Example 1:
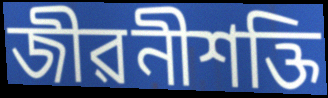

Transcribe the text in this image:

জীৱনীশক্তি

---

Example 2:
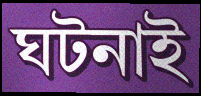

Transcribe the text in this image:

ঘটনাই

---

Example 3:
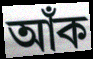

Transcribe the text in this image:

আঁক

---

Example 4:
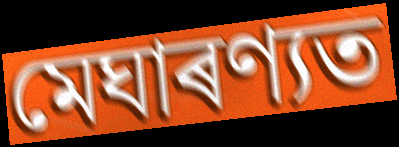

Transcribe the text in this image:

মেঘাৰণ্যত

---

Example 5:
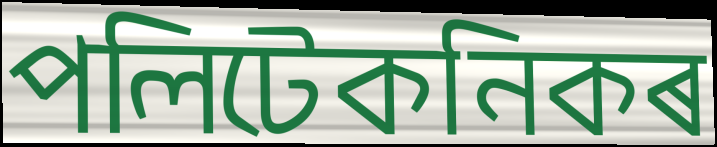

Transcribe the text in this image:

পলিটেকনিকৰ